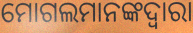
ମୋଗଲମାନଙ୍କଦ୍ୱାରା